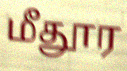
மீதூர